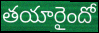
తయారైందో